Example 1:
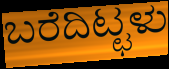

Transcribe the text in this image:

ಬರೆದಿಟ್ಟಳು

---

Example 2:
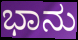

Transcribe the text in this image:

ಭಾನು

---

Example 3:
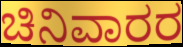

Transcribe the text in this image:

ಚಿನಿವಾರರ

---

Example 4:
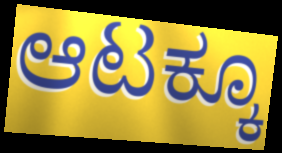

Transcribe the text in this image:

ಆಟಕ್ಕೂ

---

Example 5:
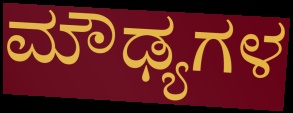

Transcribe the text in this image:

ಮೌಢ್ಯಗಳ